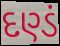
દણ્ડં